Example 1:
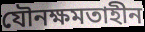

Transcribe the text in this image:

যৌনক্ষমতাহীন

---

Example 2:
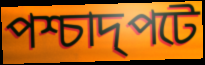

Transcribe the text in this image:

পশ্চাদ্‌পটে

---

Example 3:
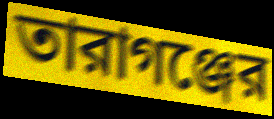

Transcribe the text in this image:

তারাগঞ্জের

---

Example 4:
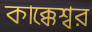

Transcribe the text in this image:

কাক্কেশ্বর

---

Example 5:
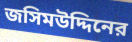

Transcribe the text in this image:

জসিমউদ্দিনের